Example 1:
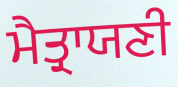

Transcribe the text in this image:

ਮੈਤ੍ਰਾਯਣੀ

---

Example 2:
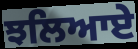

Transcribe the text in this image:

ਝਲਿਆਏ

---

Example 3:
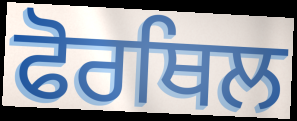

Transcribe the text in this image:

ਫੋਰਥਿਲ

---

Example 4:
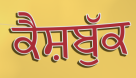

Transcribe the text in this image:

ਕੈਸ਼ਬੁੱਕ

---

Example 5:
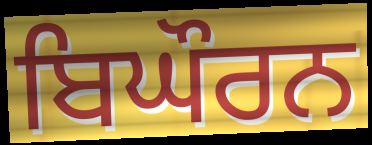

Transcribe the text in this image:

ਬਿਘੌਰਨ